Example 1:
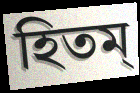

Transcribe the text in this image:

হিতম্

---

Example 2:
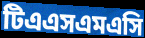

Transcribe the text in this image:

টিএএসএমএসি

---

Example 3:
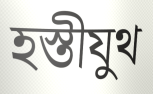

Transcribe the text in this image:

হস্তীযুথ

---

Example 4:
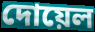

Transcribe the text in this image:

দোয়েল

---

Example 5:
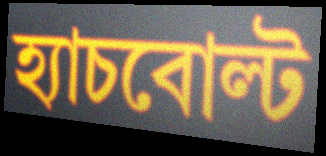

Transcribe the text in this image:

হ্যাচবোল্ট